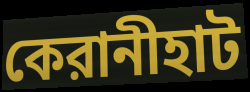
কেরানীহাট